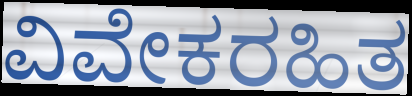
ವಿವೇಕರಹಿತ